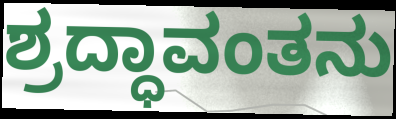
ಶ್ರದ್ಧಾವಂತನು